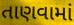
તાણવામાં